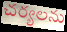
చర్యలను